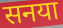
सनया